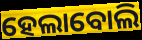
ହେଲାବୋଲି